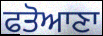
ਫਤੋਆਣਾ